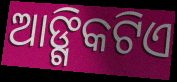
ଆଙ୍ଗିକଟିଏ